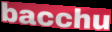
bacchu